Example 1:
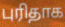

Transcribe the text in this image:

புரிதாக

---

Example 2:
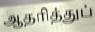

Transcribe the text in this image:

ஆதரித்துப்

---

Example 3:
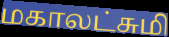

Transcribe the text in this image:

மகாலட்சுமி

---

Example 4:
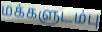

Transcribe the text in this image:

மக்களுடம்பு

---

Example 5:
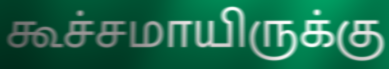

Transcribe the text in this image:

கூச்சமாயிருக்கு